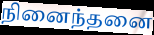
நினைந்தனை